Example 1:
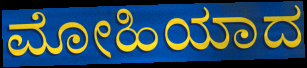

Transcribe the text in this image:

ಮೋಹಿಯಾದ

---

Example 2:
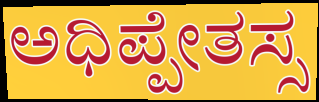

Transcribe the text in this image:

ಅಧಿಪ್ಪೇತಸ್ಸ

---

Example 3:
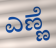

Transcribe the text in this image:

ಎಣ್ಣೆ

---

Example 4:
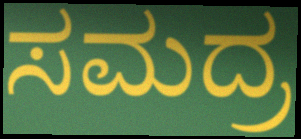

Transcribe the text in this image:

ಸಮದ್ರ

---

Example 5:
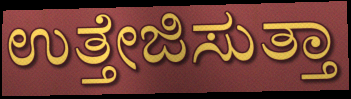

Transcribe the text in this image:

ಉತ್ತೇಜಿಸುತ್ತಾ